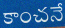
కాంచనే